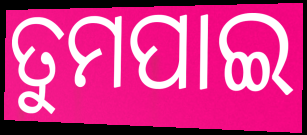
ତୁମପାଇ